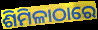
ଶିମିଳାଠାରେ